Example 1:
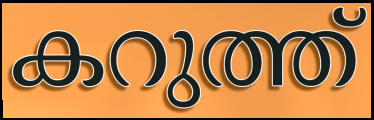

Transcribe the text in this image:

കറുത്ത്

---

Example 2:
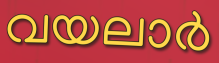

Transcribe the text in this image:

വയലാർ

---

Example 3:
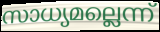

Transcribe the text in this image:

സാധ്യമല്ലെന്ന്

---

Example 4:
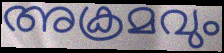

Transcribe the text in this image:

അക്രമവും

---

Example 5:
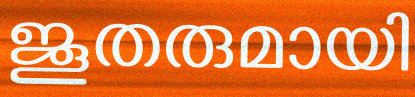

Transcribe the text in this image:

ജൂതരുമായി